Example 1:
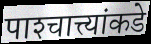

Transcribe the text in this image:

पाश्चात्त्यांकडे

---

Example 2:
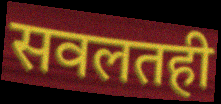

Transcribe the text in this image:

सवलतही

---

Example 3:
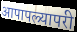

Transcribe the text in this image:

आपापल्यापरी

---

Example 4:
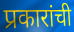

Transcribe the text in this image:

प्रकारांची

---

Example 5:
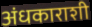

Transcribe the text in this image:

अंधकाराशी